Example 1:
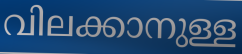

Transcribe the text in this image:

വിലക്കാനുള്ള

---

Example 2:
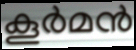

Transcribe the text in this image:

കൂർമൻ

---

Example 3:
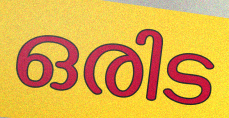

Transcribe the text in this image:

ഒരിട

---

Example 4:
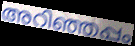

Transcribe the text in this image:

അറിഞ്ഞപ്പം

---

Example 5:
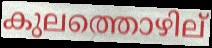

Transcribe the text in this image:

കുലത്തൊഴില്